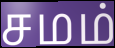
சமம்